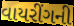
વાયરીંગની